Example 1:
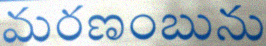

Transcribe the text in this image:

మరణంబును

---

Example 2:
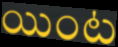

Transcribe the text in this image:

యింట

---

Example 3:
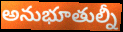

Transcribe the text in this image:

అనుభూతుల్నీ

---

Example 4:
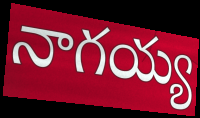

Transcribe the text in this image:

నాగయ్య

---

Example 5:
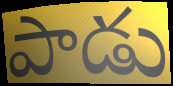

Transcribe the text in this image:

పాడు